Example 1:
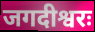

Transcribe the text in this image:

जगदीश्वरः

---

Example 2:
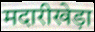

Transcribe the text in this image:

मदारीखेड़ा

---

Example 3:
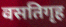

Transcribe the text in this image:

वसतिगृह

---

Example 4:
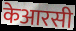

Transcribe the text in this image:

केआरसी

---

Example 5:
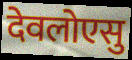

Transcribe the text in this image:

देवलोएसु